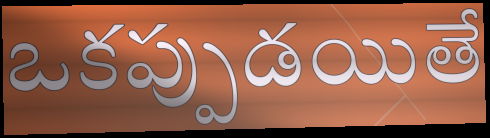
ఒకప్పుడయితే